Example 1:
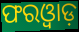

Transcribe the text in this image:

ଫରଓ୍ୱାଡ଼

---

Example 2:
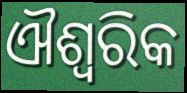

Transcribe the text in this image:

ଐଶ୍ୱରିକ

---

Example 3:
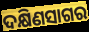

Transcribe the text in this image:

ଦକ୍ଷିଣସାଗର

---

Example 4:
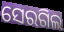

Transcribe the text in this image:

ସେରଗିଲ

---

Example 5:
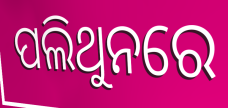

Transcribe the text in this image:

ପଲିଥୁନରେ